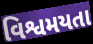
વિશ્વમયતા